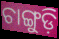
ଚାଙ୍ଗୁଡ଼ି